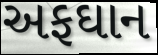
અફઘાન